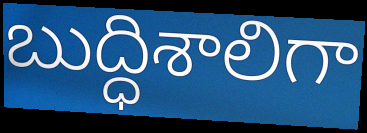
బుద్ధిశాలిగా